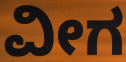
ವೀಗ